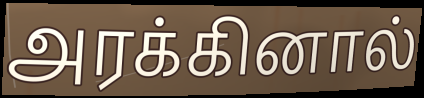
அரக்கினால்